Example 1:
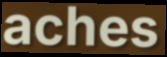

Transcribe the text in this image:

aches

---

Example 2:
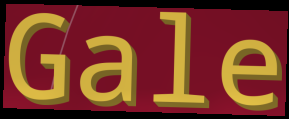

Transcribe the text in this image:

Gale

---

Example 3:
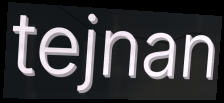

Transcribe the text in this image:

tejnan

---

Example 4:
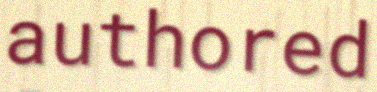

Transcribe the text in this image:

authored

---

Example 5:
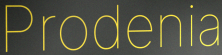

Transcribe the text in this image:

Prodenia